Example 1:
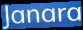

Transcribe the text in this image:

Janara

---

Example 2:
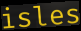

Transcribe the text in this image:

isles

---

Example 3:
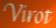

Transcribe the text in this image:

Virot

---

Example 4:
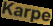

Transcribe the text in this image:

Karpe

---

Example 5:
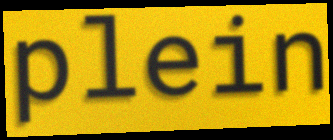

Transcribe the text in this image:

plein